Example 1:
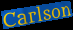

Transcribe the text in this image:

Carlson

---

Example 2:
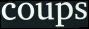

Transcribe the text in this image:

coups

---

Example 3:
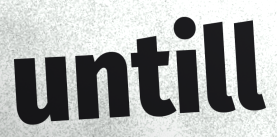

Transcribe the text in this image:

untill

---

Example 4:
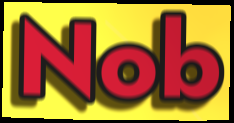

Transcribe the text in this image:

Nob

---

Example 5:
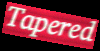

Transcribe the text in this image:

Tapered